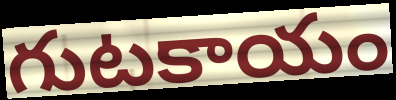
గుటకాయం